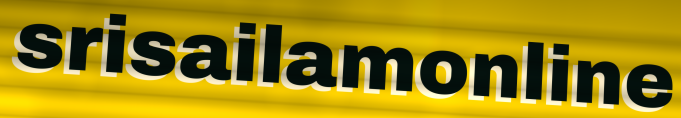
srisailamonline